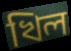
খিল